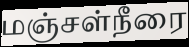
மஞ்சள்நீரை